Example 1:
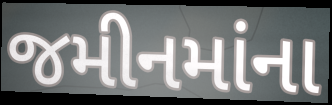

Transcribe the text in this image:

જમીનમાંના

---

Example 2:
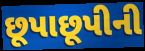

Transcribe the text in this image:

છૂપાછૂપીની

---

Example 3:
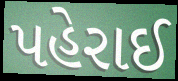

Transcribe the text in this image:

પહેરાઈ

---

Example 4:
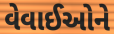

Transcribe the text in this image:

વેવાઈઓને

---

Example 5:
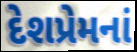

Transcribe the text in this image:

દેશપ્રેમનાં